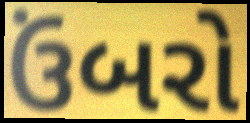
ઉંબરો